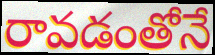
రావడంతోనే